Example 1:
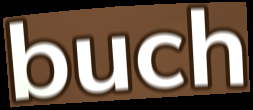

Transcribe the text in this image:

buch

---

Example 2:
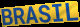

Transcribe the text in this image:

BRASIL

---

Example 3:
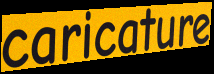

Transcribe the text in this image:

caricature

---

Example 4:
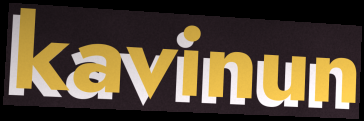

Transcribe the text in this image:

kavinun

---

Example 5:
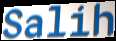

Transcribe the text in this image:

Salih